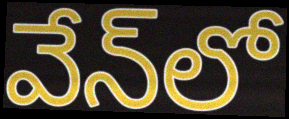
వేన్‌లో